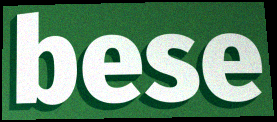
bese